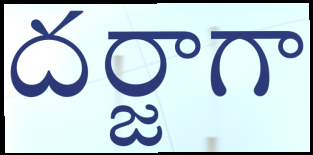
దర్జాగా